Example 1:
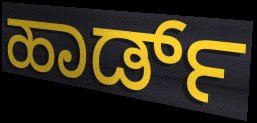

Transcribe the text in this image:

ಹಾರ್ಡ್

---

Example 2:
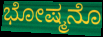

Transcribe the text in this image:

ಭೋಷ್ಮನೊ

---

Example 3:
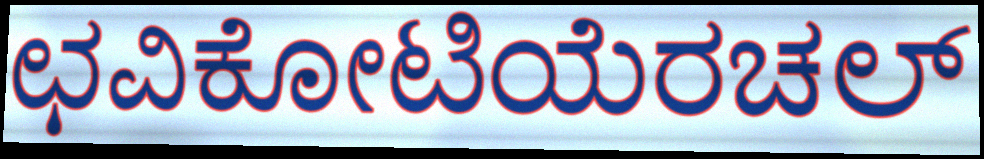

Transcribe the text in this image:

ಛವಿಕೋಟಿಯೆರಚಲ್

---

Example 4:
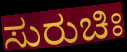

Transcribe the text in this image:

ಸುರುಚಿಃ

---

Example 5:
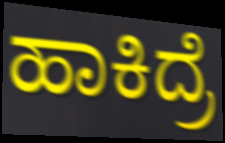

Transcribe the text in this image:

ಹಾಕಿದ್ರೆ